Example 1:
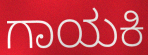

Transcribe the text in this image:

ಗಾಯಕಿ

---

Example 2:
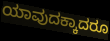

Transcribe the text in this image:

ಯಾವುದಕ್ಕಾದರೂ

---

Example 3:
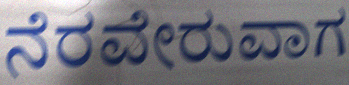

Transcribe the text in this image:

ನೆರವೇರುವಾಗ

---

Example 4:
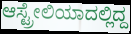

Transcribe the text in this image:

ಆಸ್ಟ್ರೇಲಿಯಾದಲ್ಲಿದ್ದ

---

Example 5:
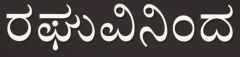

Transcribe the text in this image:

ರಘುವಿನಿಂದ